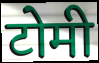
टोमी